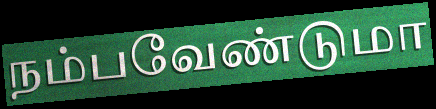
நம்பவேண்டுமா